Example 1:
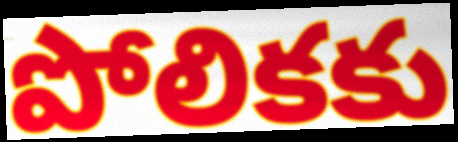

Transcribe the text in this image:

పోలికకు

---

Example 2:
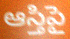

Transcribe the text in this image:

ఆస్తిపై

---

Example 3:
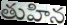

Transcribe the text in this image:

తుహిన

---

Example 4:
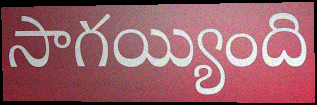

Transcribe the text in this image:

సాగయ్యింది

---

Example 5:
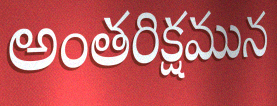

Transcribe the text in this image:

అంతరిక్షమున